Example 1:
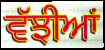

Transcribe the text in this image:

ਵੱਝੀਆਂ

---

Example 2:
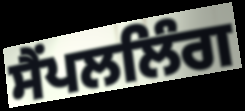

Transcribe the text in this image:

ਸੈਂਪਲਲਿੰਗ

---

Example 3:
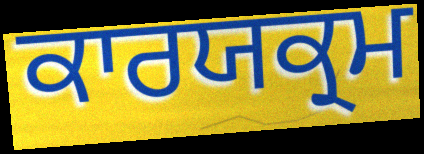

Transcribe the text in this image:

ਕਾਰਯਕ੍ਰਮ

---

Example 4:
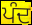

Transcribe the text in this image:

ਪੰਦ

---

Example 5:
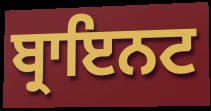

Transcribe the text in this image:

ਬ੍ਰਾਇਨਟ